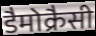
डैमोक्रैसी